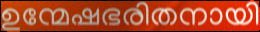
ഉന്മേഷഭരിതനായി